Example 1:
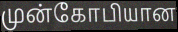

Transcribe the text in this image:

முன்கோபியான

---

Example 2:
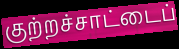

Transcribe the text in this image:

குற்றச்சாட்டைப்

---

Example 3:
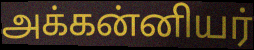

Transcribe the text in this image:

அக்கன்னியர்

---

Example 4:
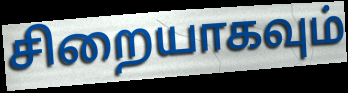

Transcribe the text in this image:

சிறையாகவும்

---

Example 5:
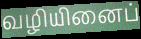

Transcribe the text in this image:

வழியினைப்